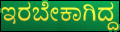
ಇರಬೇಕಾಗಿದ್ದ